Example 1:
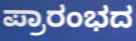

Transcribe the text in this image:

ಪ್ರಾರಂಭದ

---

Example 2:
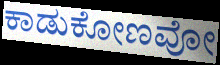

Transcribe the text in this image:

ಕಾಡುಕೋಣವೋ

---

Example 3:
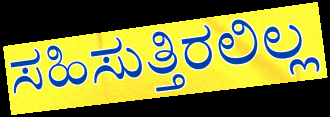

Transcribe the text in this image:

ಸಹಿಸುತ್ತಿರಲಿಲ್ಲ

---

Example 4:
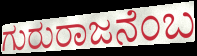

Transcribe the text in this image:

ಗುರುರಾಜನೆಂಬ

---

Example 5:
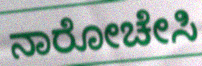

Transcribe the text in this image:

ನಾರೋಚೇಸಿ